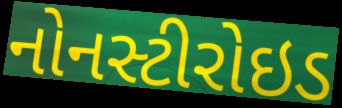
નોનસ્ટીરોઇડ